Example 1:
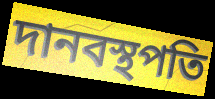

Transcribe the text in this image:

দানবস্থপতি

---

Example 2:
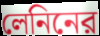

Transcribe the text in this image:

লেনিনের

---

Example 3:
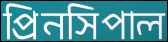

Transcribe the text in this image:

প্রিনসিপাল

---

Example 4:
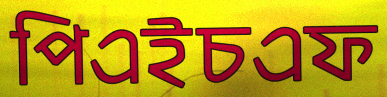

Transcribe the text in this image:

পিএইচএফ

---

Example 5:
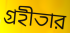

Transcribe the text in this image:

গ্রহীতার